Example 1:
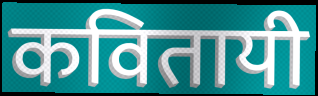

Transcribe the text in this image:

कवितायी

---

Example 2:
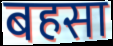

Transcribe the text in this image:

बहसा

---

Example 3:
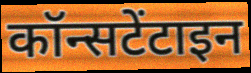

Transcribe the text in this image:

कॉन्सटेंटाइन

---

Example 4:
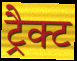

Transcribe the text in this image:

ट्रैक्ट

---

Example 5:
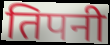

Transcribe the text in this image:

तिपनी